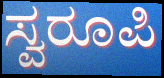
ಸ್ವರೂಪಿ